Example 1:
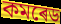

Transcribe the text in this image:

কমৰেড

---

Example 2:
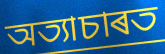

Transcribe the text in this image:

অত্যাচাৰত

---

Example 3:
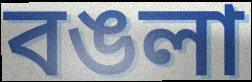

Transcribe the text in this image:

বঙলা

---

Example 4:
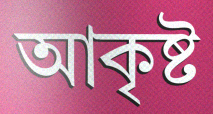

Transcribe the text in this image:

আকৃষ্ট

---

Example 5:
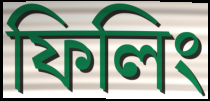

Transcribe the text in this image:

ফিলিং